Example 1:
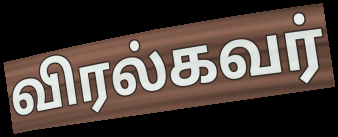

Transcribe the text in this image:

விரல்கவர்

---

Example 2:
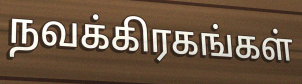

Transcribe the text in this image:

நவக்கிரகங்கள்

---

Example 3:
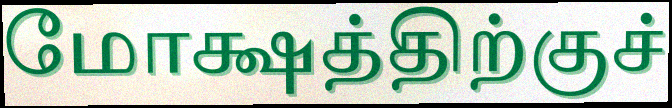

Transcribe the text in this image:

மோக்ஷத்திற்குச்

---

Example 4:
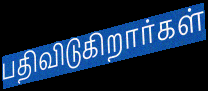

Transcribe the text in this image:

பதிவிடுகிறார்கள்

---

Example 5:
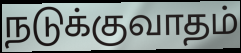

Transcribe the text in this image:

நடுக்குவாதம்